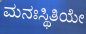
ಮನಃಸ್ಥಿತಿಯೇ